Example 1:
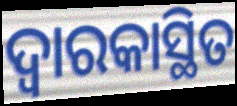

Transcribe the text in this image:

ଦ୍ୱାରକାସ୍ଥିତ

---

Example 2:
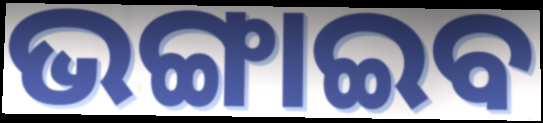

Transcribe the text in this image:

ଭଙ୍ଗାଇବ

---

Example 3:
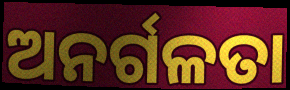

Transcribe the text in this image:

ଅନର୍ଗଳତା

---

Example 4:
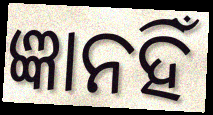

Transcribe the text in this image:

ଜ୍ଞାନହିଁ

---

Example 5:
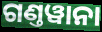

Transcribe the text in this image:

ଗଣ୍ତୱାନା